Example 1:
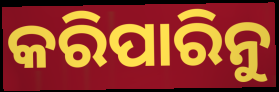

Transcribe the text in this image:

କରିପାରିନୁ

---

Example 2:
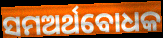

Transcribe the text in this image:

ସମଅର୍ଥବୋଧକ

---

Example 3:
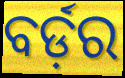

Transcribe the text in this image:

ବର୍ଡ଼ର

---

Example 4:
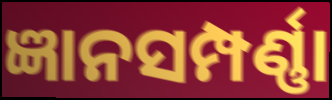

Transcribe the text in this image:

ଜ୍ଞାନସମ୍ପର୍ଣ୍ଣା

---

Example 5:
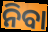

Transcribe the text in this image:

ନିବା